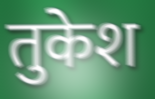
तुकेश